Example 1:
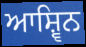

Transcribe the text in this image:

ਆਸ਼੍ਵਿਨ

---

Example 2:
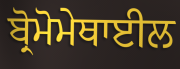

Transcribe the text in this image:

ਬ੍ਰੋਮੋਮੇਥਾਈਲ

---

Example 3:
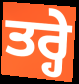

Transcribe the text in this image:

ਤਰ੍ਹੇ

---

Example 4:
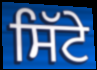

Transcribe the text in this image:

ਸਿੱਟੇ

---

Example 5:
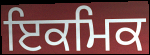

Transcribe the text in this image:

ਇਕਮਿਕ